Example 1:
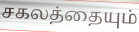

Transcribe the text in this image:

சகலத்தையும்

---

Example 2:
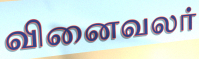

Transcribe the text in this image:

வினைவலர்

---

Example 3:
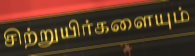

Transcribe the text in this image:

சிற்றுயிர்களையும்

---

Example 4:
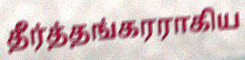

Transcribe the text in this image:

தீர்த்தங்கரராகிய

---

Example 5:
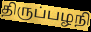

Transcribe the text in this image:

திருப்பழநி